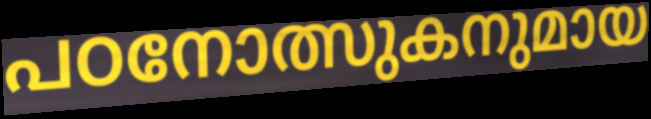
പഠനോത്സുകനുമായ